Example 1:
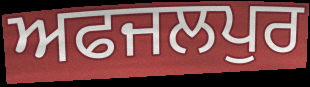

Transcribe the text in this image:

ਅਫਜਲਪੁਰ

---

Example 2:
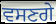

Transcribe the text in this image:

ਵਸਣਗੇ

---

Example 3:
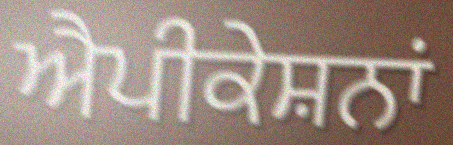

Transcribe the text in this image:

ਐਪੀਕੇਸ਼ਨਾਂ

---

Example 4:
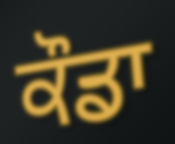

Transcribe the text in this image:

ਕੌਡਾ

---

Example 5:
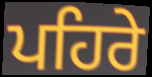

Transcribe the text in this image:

ਪਹਿਰੇ